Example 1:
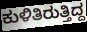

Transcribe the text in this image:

ಕುಳಿತಿರುತ್ತಿದ್ದ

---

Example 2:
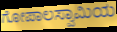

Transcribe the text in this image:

ಗೋಪಾಲಸ್ವಾಮಿಯ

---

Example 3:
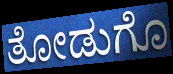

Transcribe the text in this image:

ತೋಡುಗೊ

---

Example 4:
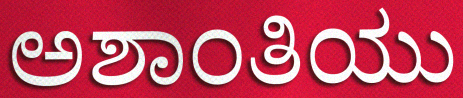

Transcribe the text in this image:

ಅಶಾಂತಿಯು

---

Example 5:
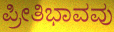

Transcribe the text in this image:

ಪ್ರೀತಿಭಾವವು